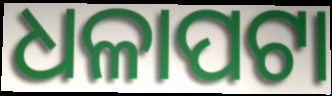
ଧଳାପଟା